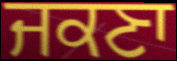
ਜਕਣਾ